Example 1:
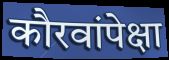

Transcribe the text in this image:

कौरवांपेक्षा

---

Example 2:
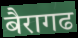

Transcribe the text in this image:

बैरागढ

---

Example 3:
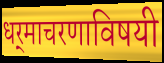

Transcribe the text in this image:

धर्माचरणाविषयी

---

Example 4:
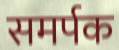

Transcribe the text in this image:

समर्पक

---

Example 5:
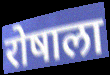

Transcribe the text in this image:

रोषाला